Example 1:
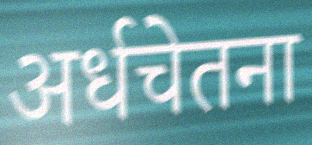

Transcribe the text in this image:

अर्धचेतना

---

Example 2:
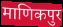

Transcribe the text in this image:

माणिकपुर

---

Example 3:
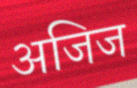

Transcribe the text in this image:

अजिज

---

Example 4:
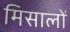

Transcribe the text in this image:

मिसालों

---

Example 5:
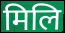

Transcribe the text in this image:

मिलि